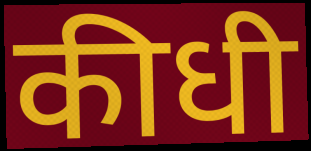
कीधी